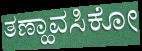
ತಣ್ಹಾವಸಿಕೋ